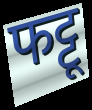
फट्टू